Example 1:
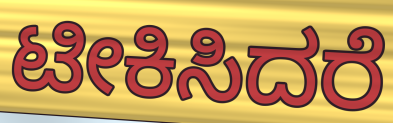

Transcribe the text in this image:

ಟೀಕಿಸಿದರೆ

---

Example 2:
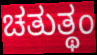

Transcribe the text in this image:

ಚತುತ್ಥಂ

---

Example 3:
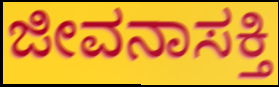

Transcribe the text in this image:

ಜೀವನಾಸಕ್ತಿ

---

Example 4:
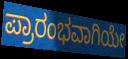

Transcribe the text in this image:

ಪ್ರಾರಂಭವಾಗಿಯೇ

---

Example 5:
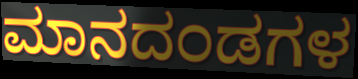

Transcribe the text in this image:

ಮಾನದಂಡಗಳ